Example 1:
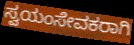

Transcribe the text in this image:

ಸ್ವಯಂಸೇವಕರಾಗಿ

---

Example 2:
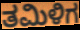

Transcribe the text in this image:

ತಮಿಳಿಗ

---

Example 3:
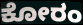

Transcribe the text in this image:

ಕೋರಂ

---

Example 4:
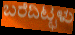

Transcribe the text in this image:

ಬರೆದಿಟ್ಟಳು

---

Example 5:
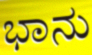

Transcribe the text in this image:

ಭಾನು